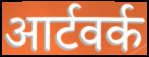
आर्टवर्क